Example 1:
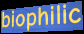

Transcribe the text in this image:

biophilic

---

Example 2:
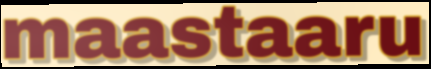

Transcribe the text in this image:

maastaaru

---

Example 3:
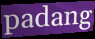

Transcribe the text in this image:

padang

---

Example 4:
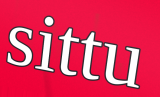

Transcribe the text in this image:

sittu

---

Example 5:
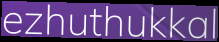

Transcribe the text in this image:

ezhuthukkal